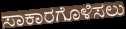
ಸಾಕಾರಗೊಳಿಸಲು